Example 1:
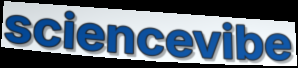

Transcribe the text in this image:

sciencevibe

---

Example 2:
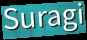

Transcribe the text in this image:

Suragi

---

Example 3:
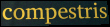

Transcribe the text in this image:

compestris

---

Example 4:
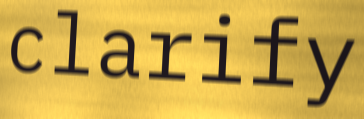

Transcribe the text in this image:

clarify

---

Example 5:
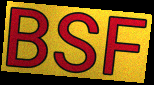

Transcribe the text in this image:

BSF